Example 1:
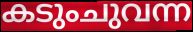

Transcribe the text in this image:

കടുംചുവന്ന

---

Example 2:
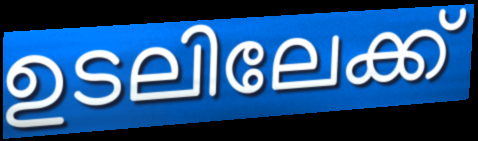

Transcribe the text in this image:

ഉടലിലേക്ക്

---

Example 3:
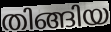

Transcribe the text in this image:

തിങ്ങിയ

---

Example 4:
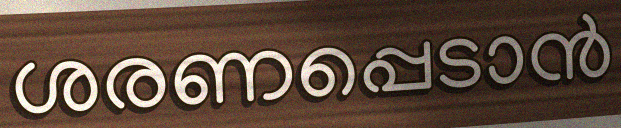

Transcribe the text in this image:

ശരണപ്പെടാൻ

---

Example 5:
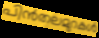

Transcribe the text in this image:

പിൻതലമുറകൾ